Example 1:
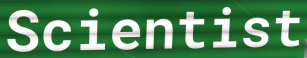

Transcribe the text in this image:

Scientist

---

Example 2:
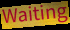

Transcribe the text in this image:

Waiting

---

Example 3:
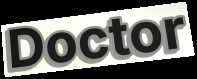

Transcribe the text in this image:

Doctor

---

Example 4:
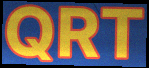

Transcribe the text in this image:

QRT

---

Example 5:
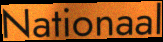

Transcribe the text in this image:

Nationaal